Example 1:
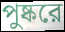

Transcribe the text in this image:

পুষ্করে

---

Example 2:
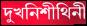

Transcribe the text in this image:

দুখনিশীথিনী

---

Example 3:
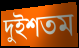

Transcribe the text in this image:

দুইশতম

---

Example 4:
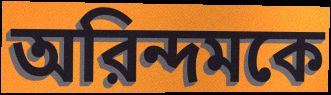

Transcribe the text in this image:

অরিন্দমকে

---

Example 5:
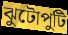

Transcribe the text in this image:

ঝুটোপুটি